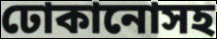
ঢোকানোসহ